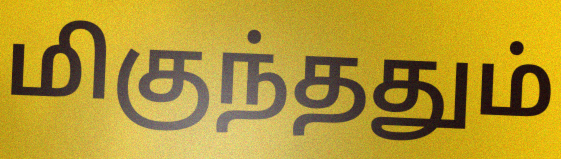
மிகுந்ததும்